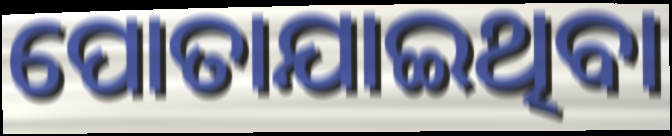
ପୋତାଯାଇଥିବା